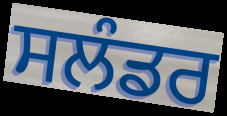
ਸਲੰਡਰ